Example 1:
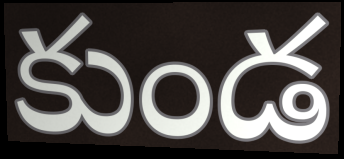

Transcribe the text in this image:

కుండ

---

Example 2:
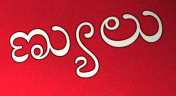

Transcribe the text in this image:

ణ్యులు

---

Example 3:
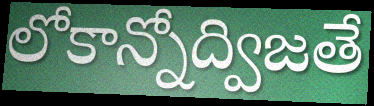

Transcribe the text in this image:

లోకాన్నోద్విజతే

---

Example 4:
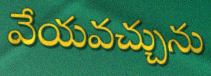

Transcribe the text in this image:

వేయవచ్చును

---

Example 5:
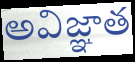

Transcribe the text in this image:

అవిజ్ఞాత